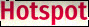
Hotspot